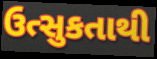
ઉત્સુકતાથી